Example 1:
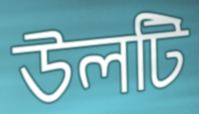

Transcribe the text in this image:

উলটি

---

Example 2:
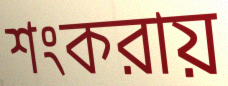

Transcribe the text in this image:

শংকরায়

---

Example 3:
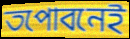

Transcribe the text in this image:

তপোবনেই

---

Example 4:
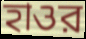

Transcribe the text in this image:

হাওর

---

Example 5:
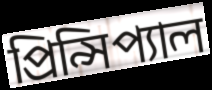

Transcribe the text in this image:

প্রিন্সিপ্যাল